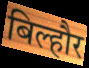
बिल्हौर